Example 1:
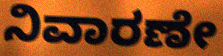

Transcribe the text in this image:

ನಿವಾರಣೇ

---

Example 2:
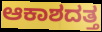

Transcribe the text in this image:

ಆಕಾಶದತ್ತ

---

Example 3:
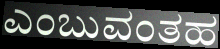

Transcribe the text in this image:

ಎಂಬುವಂತಹ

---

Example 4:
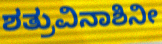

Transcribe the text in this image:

ಶತ್ರುವಿನಾಶಿನೀ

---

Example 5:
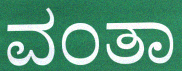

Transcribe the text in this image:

ವಂತಾ